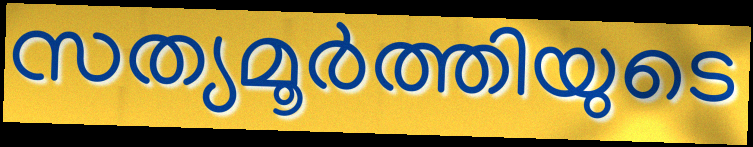
സത്യമൂർത്തിയുടെ